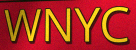
WNYC